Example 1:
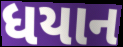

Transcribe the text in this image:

ધયાન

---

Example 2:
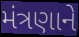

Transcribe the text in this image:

મંત્રણાને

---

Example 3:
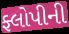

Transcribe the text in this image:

ફ્લોપીની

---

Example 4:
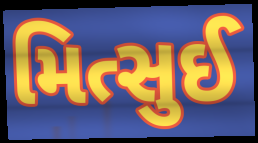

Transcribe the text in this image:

મિત્સુઈ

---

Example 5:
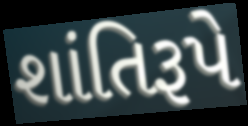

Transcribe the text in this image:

શાંતિરૂપે